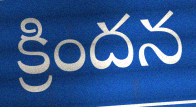
క్రిందన